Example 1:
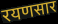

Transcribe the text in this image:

रयणसार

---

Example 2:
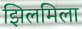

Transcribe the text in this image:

झिलमिला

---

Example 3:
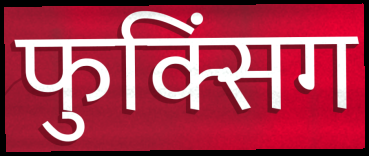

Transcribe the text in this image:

फुक्सिंग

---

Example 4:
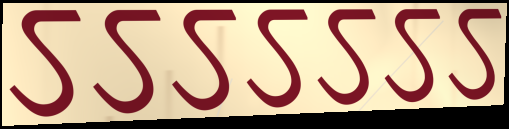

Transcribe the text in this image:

ऽऽऽऽऽऽऽ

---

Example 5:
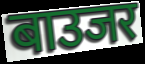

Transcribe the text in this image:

बाउजर